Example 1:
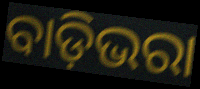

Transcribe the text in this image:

ବାଡ଼ିଭରା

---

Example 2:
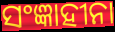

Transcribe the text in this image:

ସଂଜ୍ଞାହୀନା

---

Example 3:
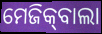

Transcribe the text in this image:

ମେଜିକ୍‍ବାଲା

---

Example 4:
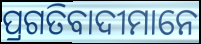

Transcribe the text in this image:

ପ୍ରଗତିବାଦୀମାନେ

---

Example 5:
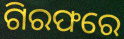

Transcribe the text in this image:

ଗିରଫରେ